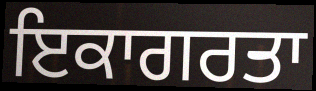
ਇਕਾਗਰਤਾ